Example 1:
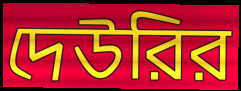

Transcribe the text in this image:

দেউরির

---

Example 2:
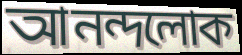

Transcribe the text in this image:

আনন্দলোক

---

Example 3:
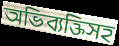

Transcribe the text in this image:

অভিব্যক্তিসহ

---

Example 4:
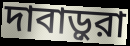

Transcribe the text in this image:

দাবাড়ুরা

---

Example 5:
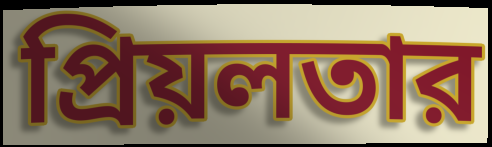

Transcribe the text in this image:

প্রিয়লতার